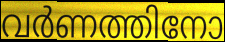
വർണത്തിനോ